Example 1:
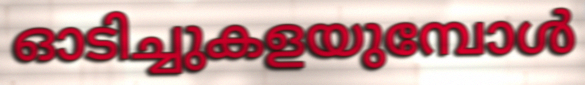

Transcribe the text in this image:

ഓടിച്ചുകളയുമ്പോൾ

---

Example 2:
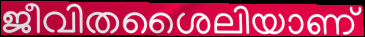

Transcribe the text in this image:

ജീവിതശൈലിയാണ്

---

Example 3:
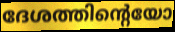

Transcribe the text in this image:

ദേശത്തിന്റെയോ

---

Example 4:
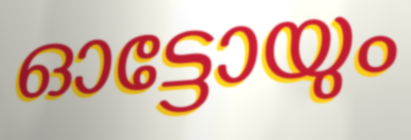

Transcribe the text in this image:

ഓട്ടോയും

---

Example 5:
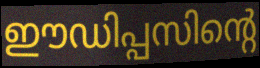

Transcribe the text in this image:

ഈഡിപ്പസിന്റെ